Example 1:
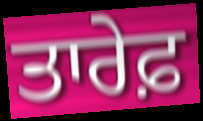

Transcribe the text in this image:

ਤਾਰੇਫ਼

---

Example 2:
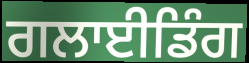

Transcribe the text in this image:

ਗਲਾਈਡਿੰਗ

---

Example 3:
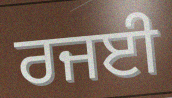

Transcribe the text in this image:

ਰਜਈ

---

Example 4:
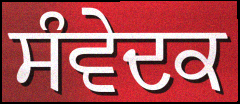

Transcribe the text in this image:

ਸੰਵੇਦਕ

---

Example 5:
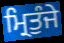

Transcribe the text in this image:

ਮ੍ਰਿਤੁੰਜੇ